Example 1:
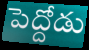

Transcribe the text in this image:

పెద్దోడు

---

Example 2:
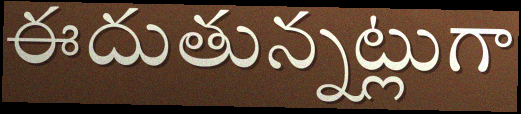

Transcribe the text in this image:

ఈదుతున్నట్లుగా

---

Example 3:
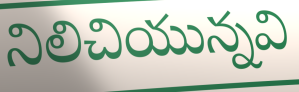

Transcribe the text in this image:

నిలిచియున్నవి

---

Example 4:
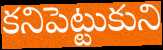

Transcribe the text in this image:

కనిపెట్టుకుని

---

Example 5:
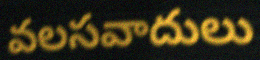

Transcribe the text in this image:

వలసవాదులు